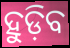
ହୁଡ଼ିବ